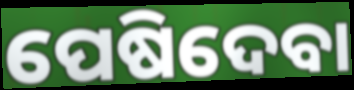
ପେଷିଦେବା